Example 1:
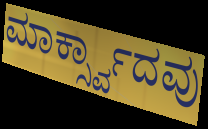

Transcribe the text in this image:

ಮಾರ್ಕ್ಸ್ವಾದವು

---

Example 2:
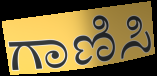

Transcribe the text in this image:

ಗಾಣಿಸಿ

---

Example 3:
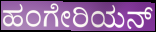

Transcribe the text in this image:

ಹಂಗೇರಿಯನ್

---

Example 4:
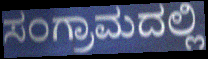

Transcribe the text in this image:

ಸಂಗ್ರಾಮದಲ್ಲಿ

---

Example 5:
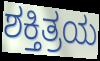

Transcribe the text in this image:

ಶಕ್ತಿತ್ರಯ